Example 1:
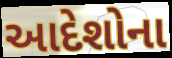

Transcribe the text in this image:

આદેશોના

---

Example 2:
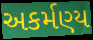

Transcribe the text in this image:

અકર્મણ્ય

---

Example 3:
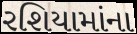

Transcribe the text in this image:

રશિયામાંના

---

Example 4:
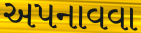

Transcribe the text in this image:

અપનાવવા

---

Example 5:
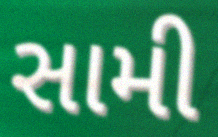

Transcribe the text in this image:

સામી